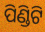
ପିଣ୍ଡିଟି